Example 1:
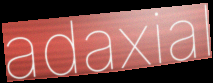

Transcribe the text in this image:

adaxial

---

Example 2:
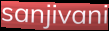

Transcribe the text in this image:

sanjivani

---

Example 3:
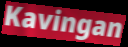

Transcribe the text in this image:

Kavingan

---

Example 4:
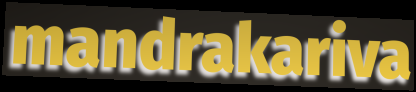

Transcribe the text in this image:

mandrakariva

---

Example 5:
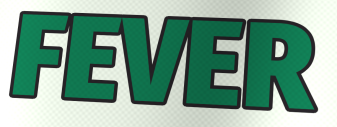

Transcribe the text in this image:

FEVER